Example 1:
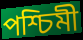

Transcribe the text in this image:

পশ্চিমী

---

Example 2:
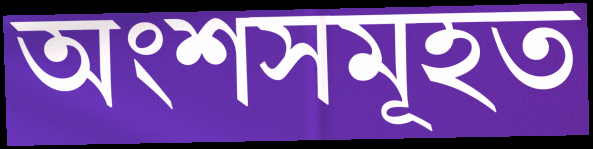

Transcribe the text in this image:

অংশসমূহত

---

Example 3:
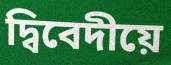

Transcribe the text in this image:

দ্বিবেদীয়ে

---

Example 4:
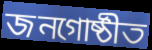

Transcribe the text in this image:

জনগোষ্ঠীত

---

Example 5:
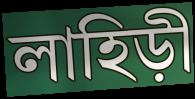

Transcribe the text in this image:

লাহিড়ী